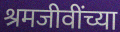
श्रमजीवींच्या